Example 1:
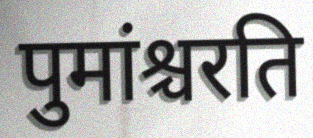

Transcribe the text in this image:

पुमांश्चरति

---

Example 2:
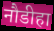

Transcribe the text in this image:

नौडीहा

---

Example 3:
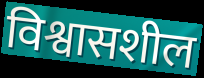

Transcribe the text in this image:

विश्वासशील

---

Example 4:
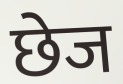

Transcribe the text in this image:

छेज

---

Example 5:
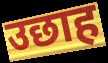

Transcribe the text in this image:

उछाह